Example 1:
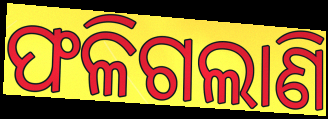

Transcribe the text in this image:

ଫଳିଗଲାଣି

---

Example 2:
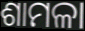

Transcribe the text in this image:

ଶାମଳା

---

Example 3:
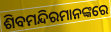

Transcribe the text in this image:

ଶିବମନ୍ଦିରମାନଙ୍କରେ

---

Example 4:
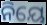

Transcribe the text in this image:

ନିୟେ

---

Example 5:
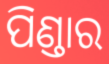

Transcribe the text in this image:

ପିଣ୍ଡାର